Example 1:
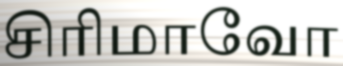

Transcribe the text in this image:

சிரிமாவோ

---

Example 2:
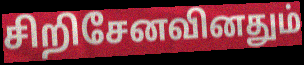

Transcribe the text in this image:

சிறிசேனவினதும்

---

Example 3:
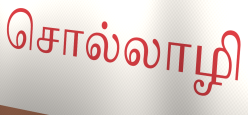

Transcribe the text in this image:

சொல்லாழி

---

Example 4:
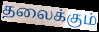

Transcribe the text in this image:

தலைக்கும்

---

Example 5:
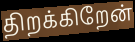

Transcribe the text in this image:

திறக்கிறேன்